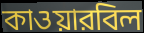
কাওয়ারবিল